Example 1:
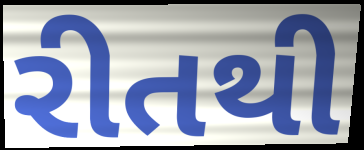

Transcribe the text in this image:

રીતથી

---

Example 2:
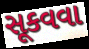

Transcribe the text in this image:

સૂકવવા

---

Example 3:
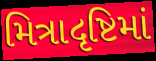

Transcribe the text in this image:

મિત્રાદૃષ્ટિમાં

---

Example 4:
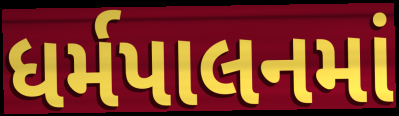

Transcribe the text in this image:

ધર્મપાલનમાં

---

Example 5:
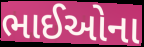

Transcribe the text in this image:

ભાઈઓના